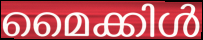
മൈക്കിൾ